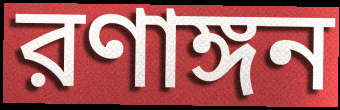
রণাঙ্গন